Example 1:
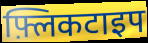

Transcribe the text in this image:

फ़्लिकटाइप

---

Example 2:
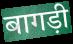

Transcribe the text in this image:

बागड़ी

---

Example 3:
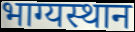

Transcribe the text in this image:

भाग्यस्थान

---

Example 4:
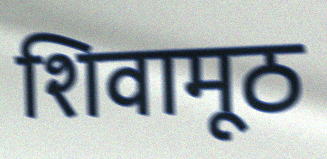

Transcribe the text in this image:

शिवामूठ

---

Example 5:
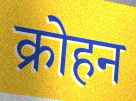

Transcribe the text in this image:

क्रोहन